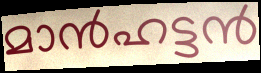
മാൻഹട്ടൻ